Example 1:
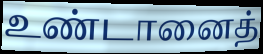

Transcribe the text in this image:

உண்டானைத்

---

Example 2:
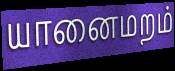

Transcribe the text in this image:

யானைமறம்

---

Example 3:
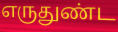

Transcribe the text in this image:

எருதுண்ட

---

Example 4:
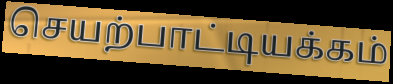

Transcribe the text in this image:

செயற்பாட்டியக்கம்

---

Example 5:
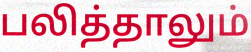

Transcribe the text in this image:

பலித்தாலும்